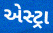
એસ્ટ્રા